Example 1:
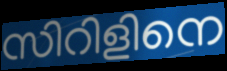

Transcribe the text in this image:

സിറിളിനെ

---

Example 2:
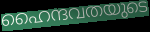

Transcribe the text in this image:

ഹൈന്ദവതയുടെ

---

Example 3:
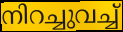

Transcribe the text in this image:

നിറച്ചുവച്ച്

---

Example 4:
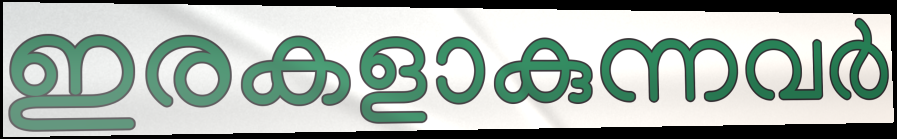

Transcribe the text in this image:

ഇരകളാകുന്നവർ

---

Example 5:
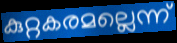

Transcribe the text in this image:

കുറ്റകരമല്ലെന്ന്